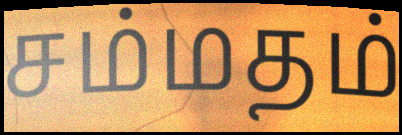
சம்மதம்